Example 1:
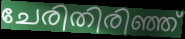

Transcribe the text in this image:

ചേരിതിരിഞ്ഞ്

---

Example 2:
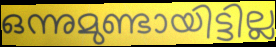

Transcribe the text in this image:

ഒന്നുമുണ്ടായിട്ടില്ല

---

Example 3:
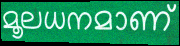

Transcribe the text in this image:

മൂലധനമാണ്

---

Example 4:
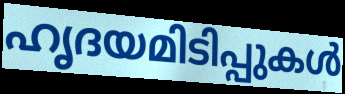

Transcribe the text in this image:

ഹൃദയമിടിപ്പുകൾ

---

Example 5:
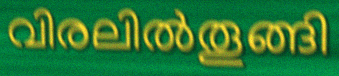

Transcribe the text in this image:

വിരലിൽതൂങ്ങി